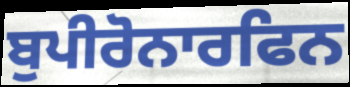
ਬੁਪੀਰੋਨਾਰਫਿਨ